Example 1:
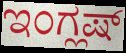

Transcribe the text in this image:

ಇಂಗ್ಲಷ್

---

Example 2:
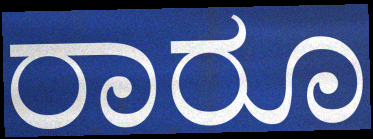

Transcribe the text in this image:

ರಾರೂ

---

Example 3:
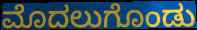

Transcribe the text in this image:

ಮೊದಲುಗೊಂಡು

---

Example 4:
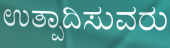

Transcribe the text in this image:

ಉತ್ಪಾದಿಸುವರು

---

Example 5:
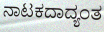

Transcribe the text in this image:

ನಾಟಕದಾದ್ಯಂತ